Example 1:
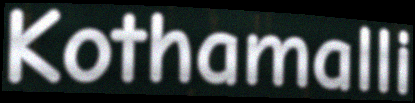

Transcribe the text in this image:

Kothamalli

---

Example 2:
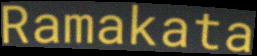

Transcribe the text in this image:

Ramakata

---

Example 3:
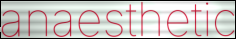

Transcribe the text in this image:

anaesthetic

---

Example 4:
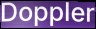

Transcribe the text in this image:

Doppler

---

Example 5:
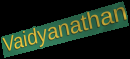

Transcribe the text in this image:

Vaidyanathan